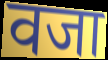
वजा